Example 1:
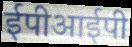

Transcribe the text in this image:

ईपीआईपी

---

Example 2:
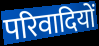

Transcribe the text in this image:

परिवादियों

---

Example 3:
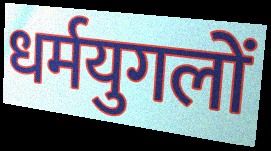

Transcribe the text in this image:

धर्मयुगलों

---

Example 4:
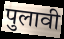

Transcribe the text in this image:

पुलावी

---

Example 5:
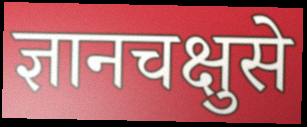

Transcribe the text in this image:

ज्ञानचक्षुसे